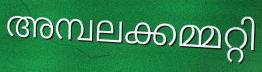
അമ്പലക്കമ്മറ്റി